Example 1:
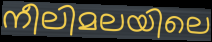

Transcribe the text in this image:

നീലിമലയിലെ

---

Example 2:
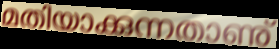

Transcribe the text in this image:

മതിയാക്കുന്നതാണു്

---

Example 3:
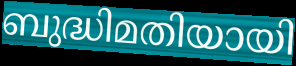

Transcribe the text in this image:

ബുദ്ധിമതിയായി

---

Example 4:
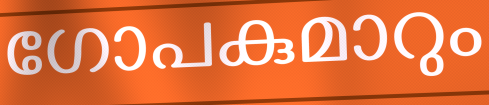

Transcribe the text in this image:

ഗോപകുമാറും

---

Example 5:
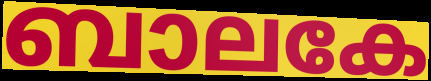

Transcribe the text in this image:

ബാലകേ